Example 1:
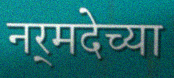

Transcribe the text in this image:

नर्मदेच्या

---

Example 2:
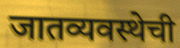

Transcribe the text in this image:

जातव्यवस्थेची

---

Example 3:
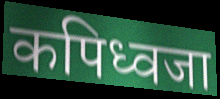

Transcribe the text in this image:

कपिध्वजा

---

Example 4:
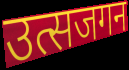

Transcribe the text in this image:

उत्सजगन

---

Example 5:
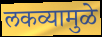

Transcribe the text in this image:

लकव्यामुळे